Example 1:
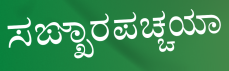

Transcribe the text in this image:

ಸಙ್ಖಾರಪಚ್ಚಯಾ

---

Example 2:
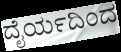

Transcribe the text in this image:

ದೈರ್ಯದಿಂದ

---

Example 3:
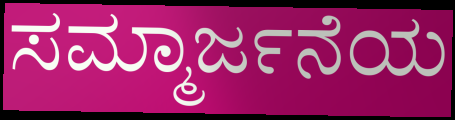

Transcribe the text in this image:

ಸಮ್ಮಾರ್ಜನೆಯ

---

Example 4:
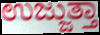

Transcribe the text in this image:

ಉಜ್ಜುತ್ತಾ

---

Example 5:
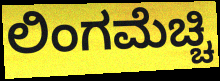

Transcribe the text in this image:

ಲಿಂಗಮೆಚ್ಚಿ